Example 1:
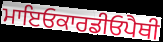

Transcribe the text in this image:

ਮਾਇਓਕਾਰਡੀਓਪੈਥੀ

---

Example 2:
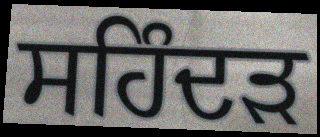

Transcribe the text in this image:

ਸਹਿੰਦੜ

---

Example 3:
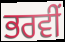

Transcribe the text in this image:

ਭਰਵੀਂ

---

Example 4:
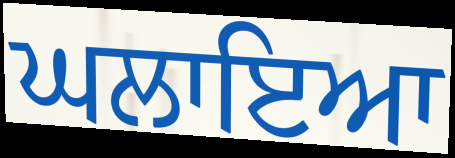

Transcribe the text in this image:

ਘਲਾਇਆ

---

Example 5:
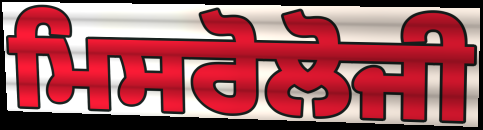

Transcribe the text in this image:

ਮਿਸਰੋਲੋਜੀ